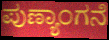
ಪುಣ್ಯಾಂಗನೆ